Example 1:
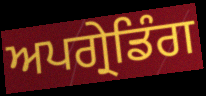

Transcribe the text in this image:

ਅਪਗ੍ਰੇਡਿੰਗ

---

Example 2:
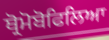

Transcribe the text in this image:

ਥ੍ਰੋਮੋਬੋਫਿਲਿਆ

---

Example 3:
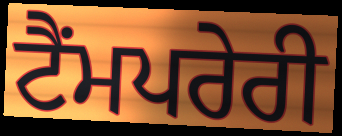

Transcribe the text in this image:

ਟੈਂਮਪਰੇਰੀ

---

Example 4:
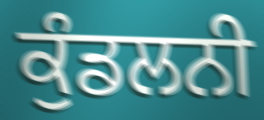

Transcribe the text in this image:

ਕੁੰਡਲਨੀ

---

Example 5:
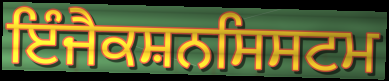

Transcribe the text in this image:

ਇੰਜੈਕਸ਼ਨਸਿਸਟਮ